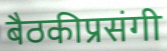
बैठकीप्रसंगी